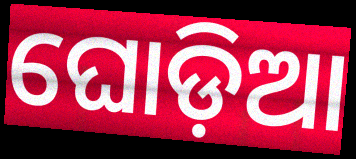
ଘୋଡ଼ିଆ